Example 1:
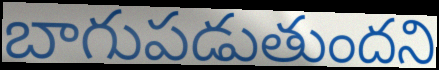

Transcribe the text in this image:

బాగుపడుతుందని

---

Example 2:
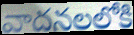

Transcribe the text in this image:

వాదనలలోకి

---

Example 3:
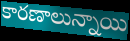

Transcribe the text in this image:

కారణాలున్నాయి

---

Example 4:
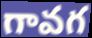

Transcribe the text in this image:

గావగ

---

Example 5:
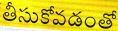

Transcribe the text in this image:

తీసుకోవడంతో